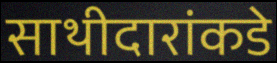
साथीदारांकडे